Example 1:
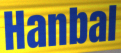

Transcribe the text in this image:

Hanbal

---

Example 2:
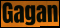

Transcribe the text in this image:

Gagan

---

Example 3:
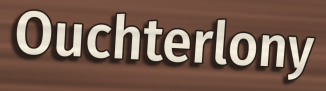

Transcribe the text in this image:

Ouchterlony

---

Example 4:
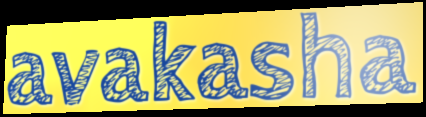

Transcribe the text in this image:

avakasha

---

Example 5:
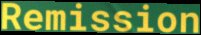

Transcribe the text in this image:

Remission